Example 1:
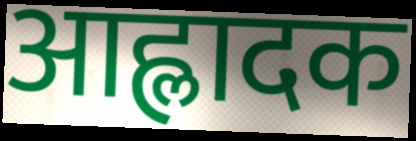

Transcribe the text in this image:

आह्लादक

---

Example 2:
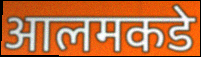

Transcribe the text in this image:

आलमकडे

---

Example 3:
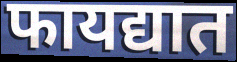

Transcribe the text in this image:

फायद्यात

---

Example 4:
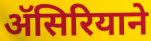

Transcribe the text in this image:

ॲसिरियाने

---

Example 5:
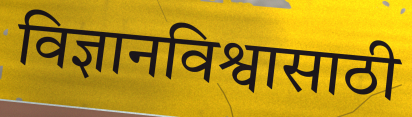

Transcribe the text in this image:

विज्ञानविश्वासाठी